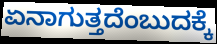
ಏನಾಗುತ್ತದೆಂಬುದಕ್ಕೆ